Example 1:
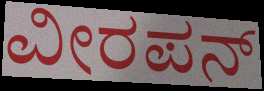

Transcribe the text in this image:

ವೀರಪನ್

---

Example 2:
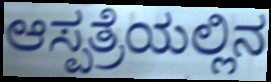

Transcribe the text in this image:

ಆಸ್ಪತ್ರೆಯಲ್ಲಿನ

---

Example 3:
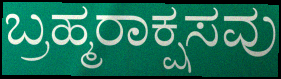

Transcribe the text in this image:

ಬ್ರಹ್ಮರಾಕ್ಷಸವು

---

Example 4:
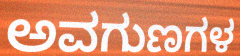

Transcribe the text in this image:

ಅವಗುಣಗಳ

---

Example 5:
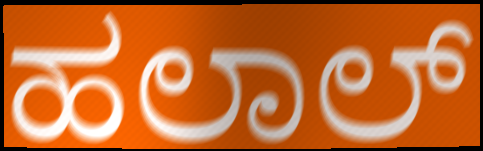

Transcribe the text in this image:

ಹಲಾಲ್